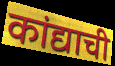
कांद्याची